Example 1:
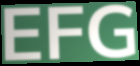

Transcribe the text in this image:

EFG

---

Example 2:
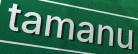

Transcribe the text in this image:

tamanu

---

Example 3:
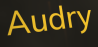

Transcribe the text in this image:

Audry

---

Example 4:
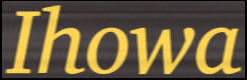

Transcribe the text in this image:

Ihowa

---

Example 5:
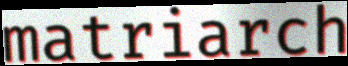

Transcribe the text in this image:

matriarch